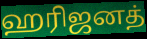
ஹரிஜனத்